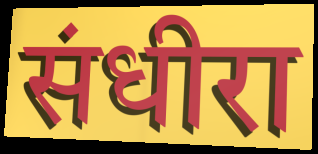
संधीरा